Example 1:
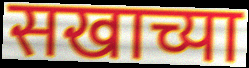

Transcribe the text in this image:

सखाच्या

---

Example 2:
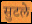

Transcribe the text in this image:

सुटले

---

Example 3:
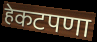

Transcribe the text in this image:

हेकटपणा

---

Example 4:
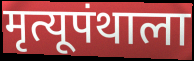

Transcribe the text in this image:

मृत्यूपंथाला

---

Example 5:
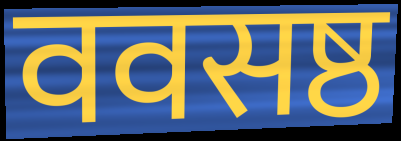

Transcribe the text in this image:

ववसष्ठ